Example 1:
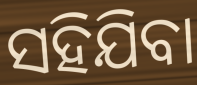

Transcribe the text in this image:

ସହିଯିବା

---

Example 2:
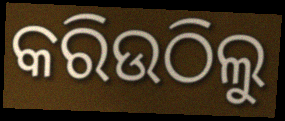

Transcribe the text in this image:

କରିଉଠିଲୁ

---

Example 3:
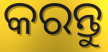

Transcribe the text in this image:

କରନ୍ତୁ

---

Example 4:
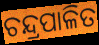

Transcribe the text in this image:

ଚନ୍ଦ୍ରପାଳିତ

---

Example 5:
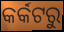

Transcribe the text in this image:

କର୍କଟରୁ